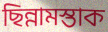
ছিন্নামস্তাক